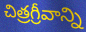
చిత్రగ్రీవాన్ని